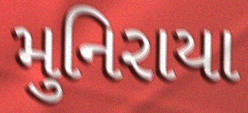
મુનિરાયા